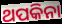
ଥପକିନା